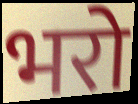
भरो